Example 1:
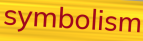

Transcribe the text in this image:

symbolism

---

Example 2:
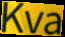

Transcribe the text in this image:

Kva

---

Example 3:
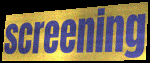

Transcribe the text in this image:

screening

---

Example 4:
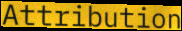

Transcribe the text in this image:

Attribution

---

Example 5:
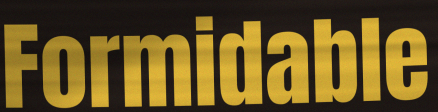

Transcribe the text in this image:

Formidable